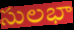
సులభా